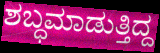
ಶಬ್ಧಮಾಡುತ್ತಿದ್ದ